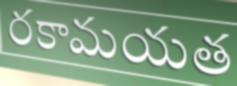
రకామయత